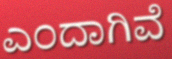
ಎಂದಾಗಿವೆ